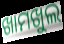
ଖାମଖୁଲ